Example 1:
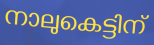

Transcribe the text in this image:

നാലുകെട്ടിന്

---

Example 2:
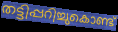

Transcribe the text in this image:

തട്ടിപ്പറിച്ചുകൊണ്ട്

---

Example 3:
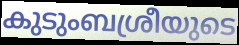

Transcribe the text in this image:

കുടുംബശ്രീയുടെ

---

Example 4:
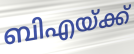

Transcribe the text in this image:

ബിഎയ്ക്ക്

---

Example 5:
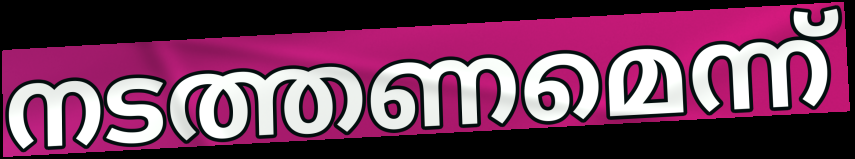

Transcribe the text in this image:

നടത്തണമെന്ന്